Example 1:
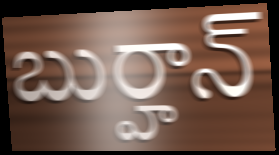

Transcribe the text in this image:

బుర్హాన్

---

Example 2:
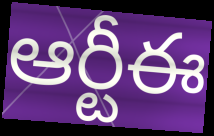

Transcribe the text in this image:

ఆర్టీఈ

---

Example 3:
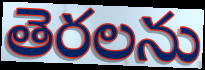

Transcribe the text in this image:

తెరలను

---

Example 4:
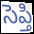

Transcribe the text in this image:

సెప్తి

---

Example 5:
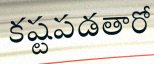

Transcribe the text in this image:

కష్టపడతారో